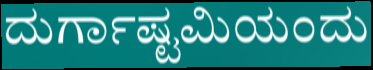
ದುರ್ಗಾಷ್ಟಮಿಯಂದು